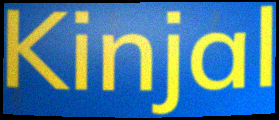
Kinjal